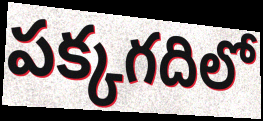
పక్కగదిలో